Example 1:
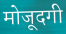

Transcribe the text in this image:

मोजूदगी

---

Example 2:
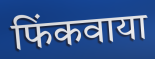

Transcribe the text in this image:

फिंकवाया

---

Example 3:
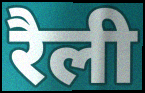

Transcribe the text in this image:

रैली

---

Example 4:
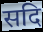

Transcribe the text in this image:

सदि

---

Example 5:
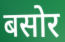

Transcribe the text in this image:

बसोर